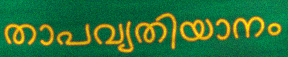
താപവ്യതിയാനം